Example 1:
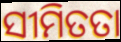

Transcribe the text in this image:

ସୀମିତତା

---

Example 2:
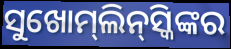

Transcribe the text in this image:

ସୁଖୋମ୍‌ଲିନ୍‌ସ୍କିଙ୍କର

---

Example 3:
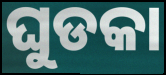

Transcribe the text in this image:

ଘୁଡକା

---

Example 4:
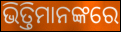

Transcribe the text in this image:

ଭିତ୍ତିମାନଙ୍କରେ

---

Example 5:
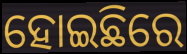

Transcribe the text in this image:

ହୋଇଛିରେ